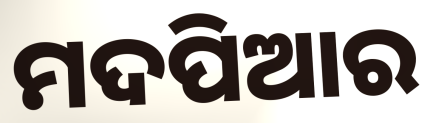
ମଦପିଆର